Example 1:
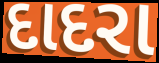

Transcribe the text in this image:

દાદરા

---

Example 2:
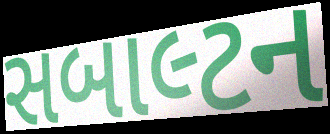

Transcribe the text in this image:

સબાલ્ટન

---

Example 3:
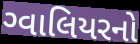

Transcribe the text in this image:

ગ્વાલિયરનો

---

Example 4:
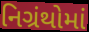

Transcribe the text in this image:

નિગ્રંથોમાં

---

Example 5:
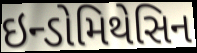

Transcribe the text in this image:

ઇન્ડોમિથેસિન